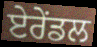
ਏਰੇਂਡਲ